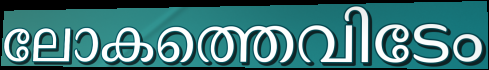
ലോകത്തെവിടേം